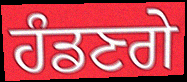
ਹੰਡਣਗੇ